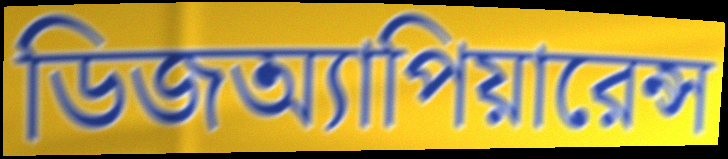
ডিজঅ্যাপিয়ারেন্স